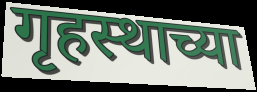
गृहस्थाच्या